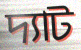
দ্যাট